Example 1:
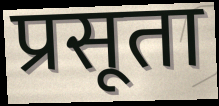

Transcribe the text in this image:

प्रसूता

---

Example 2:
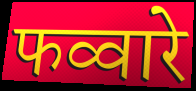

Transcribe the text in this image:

फव्वारे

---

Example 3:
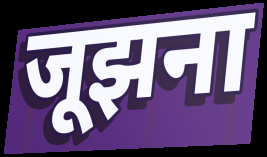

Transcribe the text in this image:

जूझना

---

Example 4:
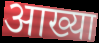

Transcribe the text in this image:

आख्या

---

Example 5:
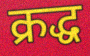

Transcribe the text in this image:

क्रद्ध